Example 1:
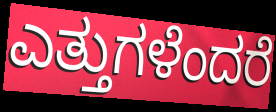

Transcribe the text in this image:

ಎತ್ತುಗಳೆಂದರೆ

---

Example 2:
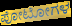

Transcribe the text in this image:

ಪೋಟೋಗಳ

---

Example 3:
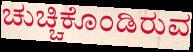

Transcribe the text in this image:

ಚುಚ್ಚಿಕೊಂಡಿರುವ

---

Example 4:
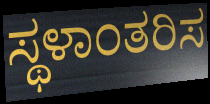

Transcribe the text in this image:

ಸ್ಥಳಾಂತರಿಸ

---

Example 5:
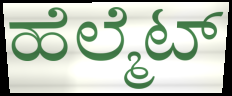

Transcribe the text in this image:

ಹೆಲ್ಮೆಟ್